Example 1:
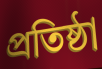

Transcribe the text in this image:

প্ৰতিষ্ঠা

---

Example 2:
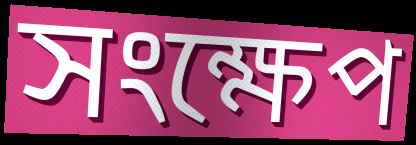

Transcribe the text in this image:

সংক্ষেপ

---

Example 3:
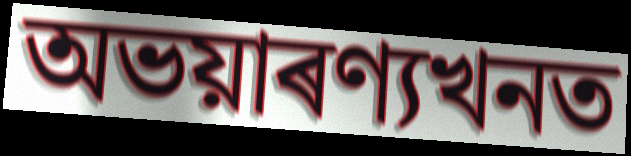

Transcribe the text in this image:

অভয়াৰণ্যখনত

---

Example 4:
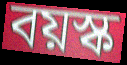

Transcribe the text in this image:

বয়স্ক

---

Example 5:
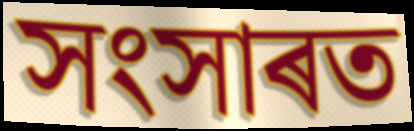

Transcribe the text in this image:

সংসাৰত